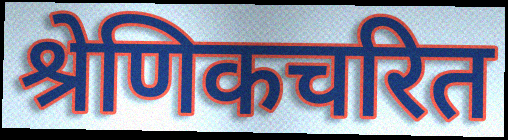
श्रेणिकचरित